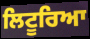
ਲਿਟੂਰਿਆ